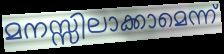
മനസ്സിലാക്കാമെന്ന്